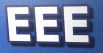
EEE